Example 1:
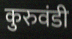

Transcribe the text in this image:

कुरुवंडी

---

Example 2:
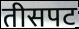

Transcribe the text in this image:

तीसपट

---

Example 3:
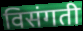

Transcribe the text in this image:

विसंगती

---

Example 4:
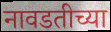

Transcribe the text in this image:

नावडतीच्या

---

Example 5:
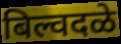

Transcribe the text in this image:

बिल्वदळे